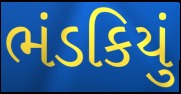
ભંડકિયું